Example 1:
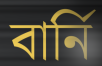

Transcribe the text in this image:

বার্নি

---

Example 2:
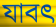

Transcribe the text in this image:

যাবৎ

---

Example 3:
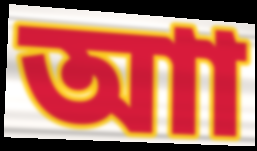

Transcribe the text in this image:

আা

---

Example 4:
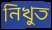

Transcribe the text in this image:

নিখুত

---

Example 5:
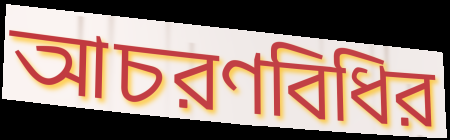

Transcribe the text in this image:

আচরণবিধির